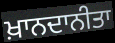
ਖ਼ਾਨਦਾਨੀਤਾ